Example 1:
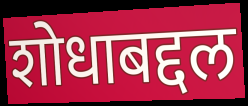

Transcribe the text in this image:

शोधाबद्दल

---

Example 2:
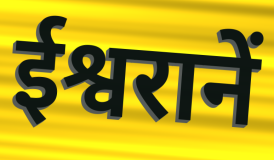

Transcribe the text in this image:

ईश्वरानें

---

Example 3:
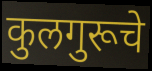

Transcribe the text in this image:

कुलगुरूचे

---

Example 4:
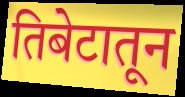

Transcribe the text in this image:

तिबेटातून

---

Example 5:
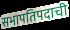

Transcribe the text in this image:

सभापतिपदाची